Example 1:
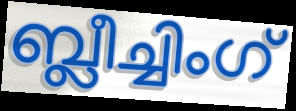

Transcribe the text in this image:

ബ്ലീച്ചിംഗ്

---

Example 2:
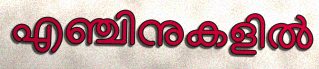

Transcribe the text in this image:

എഞ്ചിനുകളിൽ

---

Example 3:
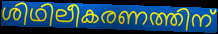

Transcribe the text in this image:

ശിഥിലീകരണത്തിന്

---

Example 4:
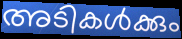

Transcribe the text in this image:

അടികൾക്കും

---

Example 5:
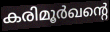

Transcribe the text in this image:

കരിമൂർഖന്റെ